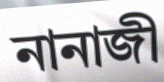
নানাজী